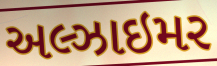
અલ્ઝાઇમર